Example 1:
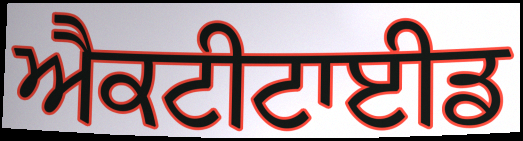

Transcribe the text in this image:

ਐਕਟੀਟਾਈਡ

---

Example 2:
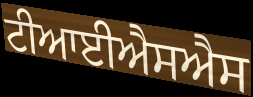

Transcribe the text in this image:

ਟੀਆਈਐਸਐਸ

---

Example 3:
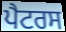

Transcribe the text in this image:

ਪੈਟਰਸ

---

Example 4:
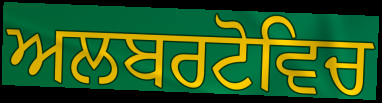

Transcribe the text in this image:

ਅਲਬਰਟੋਵਿਚ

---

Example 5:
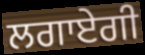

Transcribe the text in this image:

ਲਗਾਏਗੀ